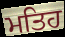
ਮਤਿਹ